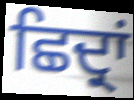
ਛਿਦ੍ਰਾਂ